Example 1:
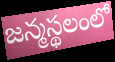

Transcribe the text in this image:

జన్మస్థలంలో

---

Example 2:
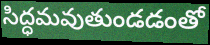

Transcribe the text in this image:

సిద్ధమవుతుండడంతో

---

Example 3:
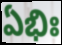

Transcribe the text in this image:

ఏభిః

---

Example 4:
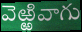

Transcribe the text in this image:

వెఱ్ఱివాగు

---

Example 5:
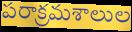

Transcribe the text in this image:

పరాక్రమశాలుల